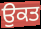
ਉਕਤ